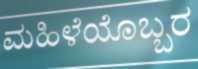
ಮಹಿಳೆಯೊಬ್ಬರ